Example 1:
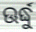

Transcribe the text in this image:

ଊର୍ଦ୍ଧୁ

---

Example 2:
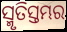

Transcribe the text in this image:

ସ୍ମୃତିସ୍ତମ୍ଭର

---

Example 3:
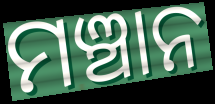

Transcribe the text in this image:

ମଞ୍ଚାନ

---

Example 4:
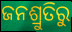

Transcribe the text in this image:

ଜନଶ୍ରୁତିରୁ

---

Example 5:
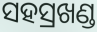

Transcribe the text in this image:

ସହସ୍ରଖଣ୍ଡ